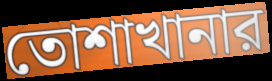
তোশাখানার